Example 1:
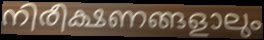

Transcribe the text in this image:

നിരീക്ഷണങ്ങളാലും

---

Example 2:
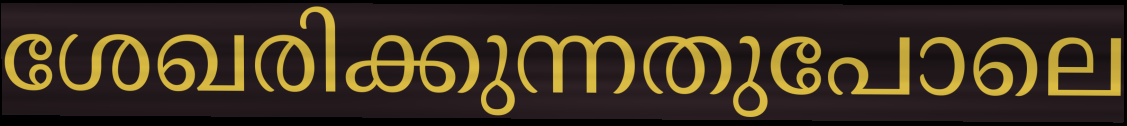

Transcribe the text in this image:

ശേഖരിക്കുന്നതുപോലെ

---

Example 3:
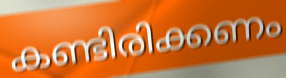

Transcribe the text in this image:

കണ്ടിരിക്കണം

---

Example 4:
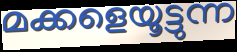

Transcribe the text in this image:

മക്കളെയൂട്ടുന്ന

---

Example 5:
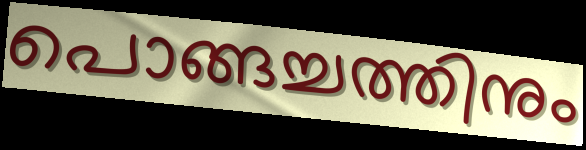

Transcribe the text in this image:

പൊങ്ങച്ചത്തിനും